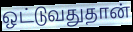
ஒட்டுவதுதான்